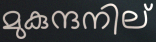
മുകുന്ദനില്